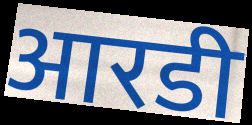
आरडी